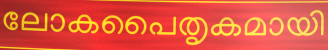
ലോകപൈതൃകമായി